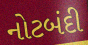
નોટબંદી